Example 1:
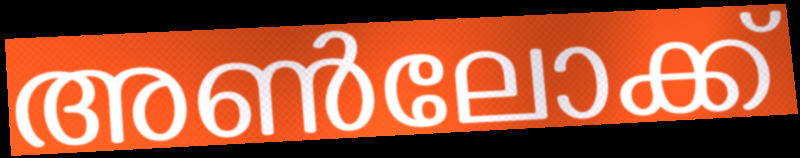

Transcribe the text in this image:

അൺലോക്ക്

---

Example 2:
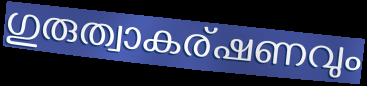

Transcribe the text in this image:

ഗുരുത്വാകര്ഷണവും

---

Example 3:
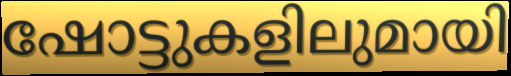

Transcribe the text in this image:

ഷോട്ടുകളിലുമായി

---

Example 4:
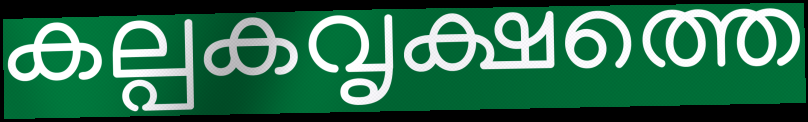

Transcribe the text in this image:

കല്പകവൃക്ഷത്തെ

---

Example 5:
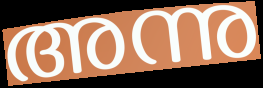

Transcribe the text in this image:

അന്നു